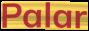
Palar